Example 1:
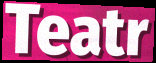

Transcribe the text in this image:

Teatr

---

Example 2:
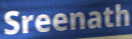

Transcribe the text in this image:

Sreenath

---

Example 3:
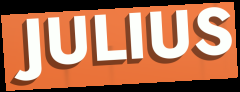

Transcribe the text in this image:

JULIUS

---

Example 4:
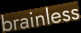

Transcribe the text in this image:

brainless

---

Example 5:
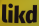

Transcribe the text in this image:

likd